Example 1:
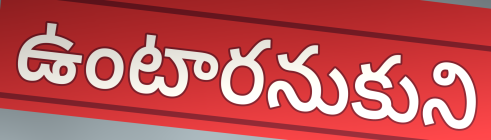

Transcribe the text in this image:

ఉంటారనుకుని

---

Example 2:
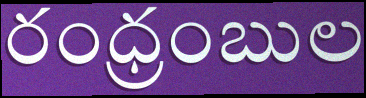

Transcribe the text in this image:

రంధ్రంబుల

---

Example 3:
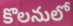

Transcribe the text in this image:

కొలనులో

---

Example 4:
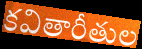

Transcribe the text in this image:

కవితారీతుల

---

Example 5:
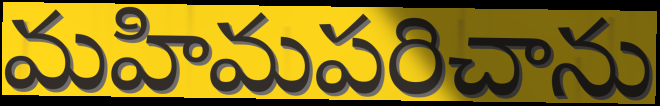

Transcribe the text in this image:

మహిమపరిచాను